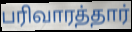
பரிவாரத்தார்